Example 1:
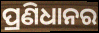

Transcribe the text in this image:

ପ୍ରଣିଧାନର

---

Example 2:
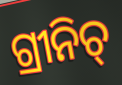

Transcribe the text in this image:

ଗ୍ରୀନିଚ୍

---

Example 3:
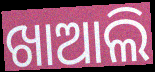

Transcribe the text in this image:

ଖାଆଲି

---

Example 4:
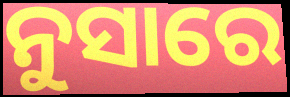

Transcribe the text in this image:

ନୁସାରେ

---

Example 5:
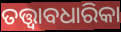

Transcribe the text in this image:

ତତ୍ତ୍ୱାବଧାରିକା